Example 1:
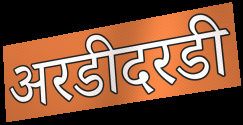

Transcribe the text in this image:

अरडीदरडी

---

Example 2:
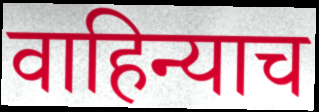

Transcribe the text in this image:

वाहिन्याच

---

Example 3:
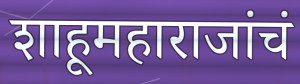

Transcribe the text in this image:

शाहूमहाराजांचं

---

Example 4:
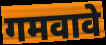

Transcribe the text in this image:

गमवावे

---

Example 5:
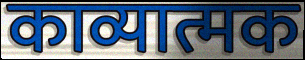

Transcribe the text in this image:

काव्यात्मक